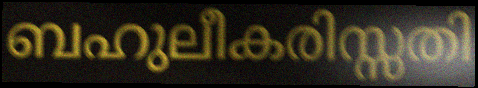
ബഹുലീകരിസ്സതി